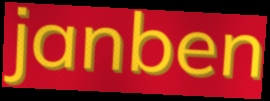
janben